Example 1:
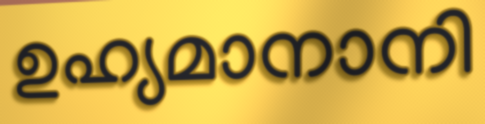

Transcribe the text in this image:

ഉഹ്യമാനാനി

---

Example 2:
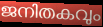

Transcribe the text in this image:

ജനിതകവും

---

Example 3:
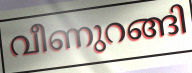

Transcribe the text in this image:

വീണുറങ്ങി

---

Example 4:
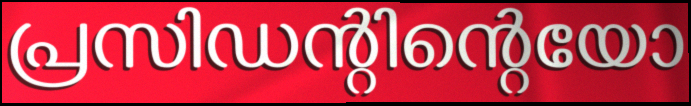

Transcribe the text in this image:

പ്രസിഡന്റിന്റെയോ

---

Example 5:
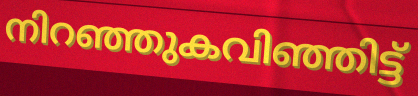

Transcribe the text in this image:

നിറഞ്ഞുകവിഞ്ഞിട്ട്